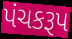
પંચકરૂપ